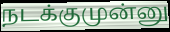
நடக்குமுன்னு